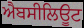
ਐਬਸੀਲਿਊਟ